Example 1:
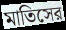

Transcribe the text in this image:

মাতিসের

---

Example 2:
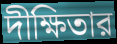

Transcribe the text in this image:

দীক্ষিতার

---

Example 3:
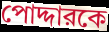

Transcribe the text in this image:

পোদ্দারকে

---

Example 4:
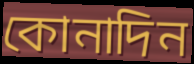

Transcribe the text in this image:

কোনাদিন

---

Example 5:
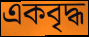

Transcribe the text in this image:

একবৃদ্ধ